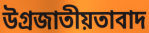
উগ্রজাতীয়তাবাদ